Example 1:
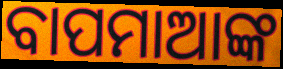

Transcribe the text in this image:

ବାପମାଆଙ୍କ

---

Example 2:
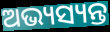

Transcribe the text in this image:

ଅଭ୍ୟସ୍ୟନ୍ତ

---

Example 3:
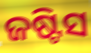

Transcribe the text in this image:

ଜଷ୍ଟିସ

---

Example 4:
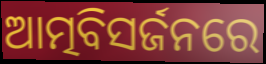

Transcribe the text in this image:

ଆତ୍ମବିସର୍ଜନରେ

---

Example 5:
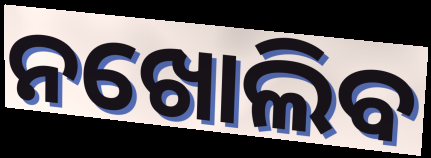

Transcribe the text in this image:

ନଖୋଲିବ